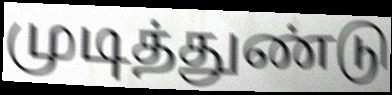
முடித்துண்டு